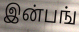
இன்பங்